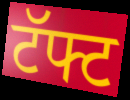
टॅफ्ट